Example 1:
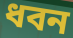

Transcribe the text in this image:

ধবন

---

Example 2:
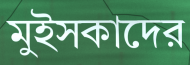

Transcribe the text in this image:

মুইসকাদের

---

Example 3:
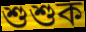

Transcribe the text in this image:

শুশুক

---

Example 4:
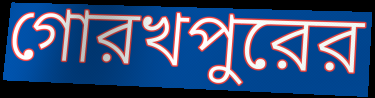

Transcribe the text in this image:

গোরখপুরের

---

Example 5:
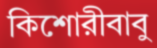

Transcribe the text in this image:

কিশোরীবাবু